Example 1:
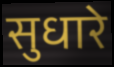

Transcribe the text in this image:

सुधारे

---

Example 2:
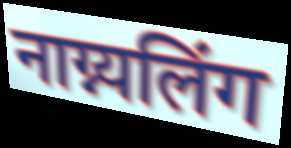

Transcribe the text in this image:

नाग्न्यलिंग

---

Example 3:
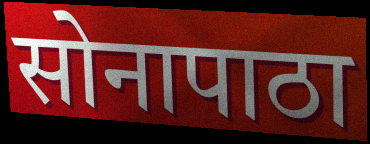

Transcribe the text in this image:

सोनापाठा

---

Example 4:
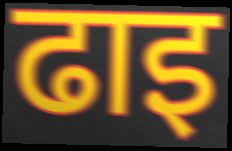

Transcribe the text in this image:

ढाइ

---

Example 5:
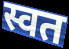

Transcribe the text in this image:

स्वत